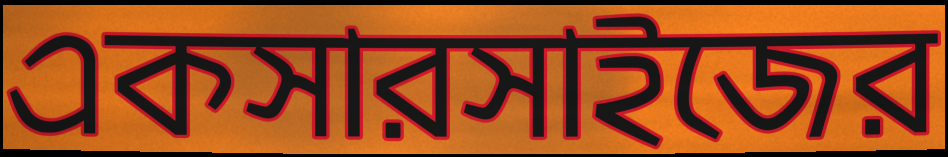
একসারসাইজের